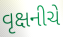
વૃક્ષનીચે